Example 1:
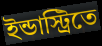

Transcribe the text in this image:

ইন্ডাস্ট্রিতে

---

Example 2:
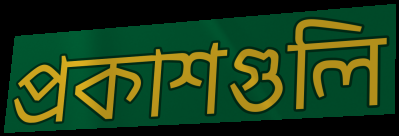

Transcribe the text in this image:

প্রকাশগুলি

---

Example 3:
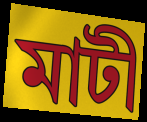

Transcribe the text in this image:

মাটী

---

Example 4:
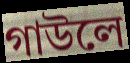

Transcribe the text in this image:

গাউলে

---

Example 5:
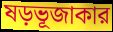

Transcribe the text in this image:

ষড়ভূজাকার